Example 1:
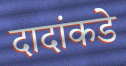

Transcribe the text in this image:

दादांकडे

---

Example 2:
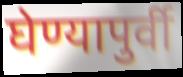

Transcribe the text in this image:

घेण्यापुर्वी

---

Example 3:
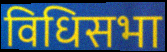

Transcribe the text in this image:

विधिसभा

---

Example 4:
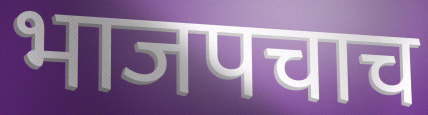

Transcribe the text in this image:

भाजपचाच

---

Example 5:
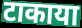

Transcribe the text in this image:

टाकाया